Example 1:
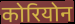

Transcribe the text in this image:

कोरियोन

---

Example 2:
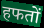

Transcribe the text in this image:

हफतों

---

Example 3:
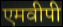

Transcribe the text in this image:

एमवीपी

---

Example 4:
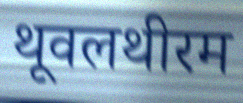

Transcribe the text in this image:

थूवलथीरम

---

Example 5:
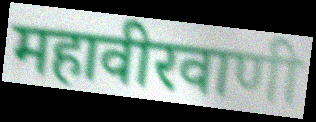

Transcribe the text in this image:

महावीरवाणी